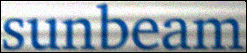
sunbeam